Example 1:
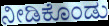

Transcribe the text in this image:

ನೀಡಿಕೊಂಡು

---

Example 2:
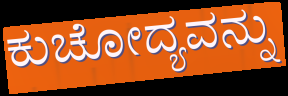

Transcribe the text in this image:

ಕುಚೋದ್ಯವನ್ನು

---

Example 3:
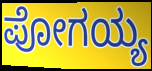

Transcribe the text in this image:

ಪೋಗಯ್ಯ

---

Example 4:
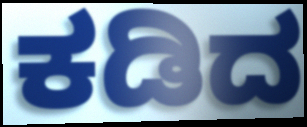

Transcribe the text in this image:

ಕಡಿದ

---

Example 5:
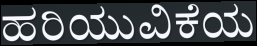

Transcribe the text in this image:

ಹರಿಯುವಿಕೆಯ